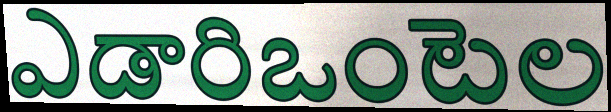
ఎడారిఒంటెల